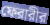
ফেরারীর